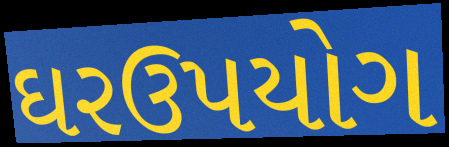
ઘરઉપયોગ